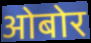
ओबोर